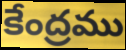
కేంద్రము